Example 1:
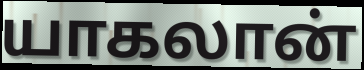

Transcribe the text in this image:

யாகலான்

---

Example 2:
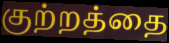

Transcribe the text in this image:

குற்றத்தை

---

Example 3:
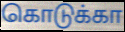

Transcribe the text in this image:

கொடுக்கா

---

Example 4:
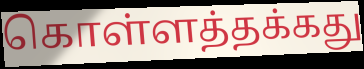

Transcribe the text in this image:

கொள்ளத்தக்கது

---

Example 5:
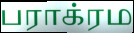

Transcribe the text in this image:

பராக்ரம